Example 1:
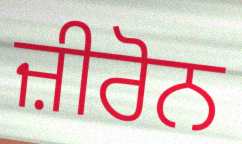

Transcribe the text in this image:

ਜ਼ੀਰੋਨ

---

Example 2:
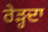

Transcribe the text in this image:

ਰੇੜ੍ਹਦਾ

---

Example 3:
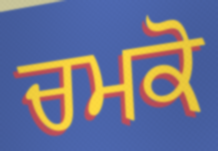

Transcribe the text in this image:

ਚਮਕੋ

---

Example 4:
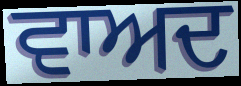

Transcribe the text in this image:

ਵਾਅਦ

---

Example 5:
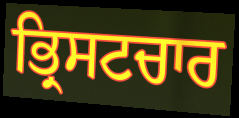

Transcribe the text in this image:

ਭ੍ਰਿਸਟਚਾਰ